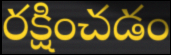
రక్షించడం